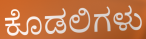
ಕೊಡಲಿಗಳು